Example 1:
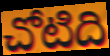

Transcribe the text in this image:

చోటిది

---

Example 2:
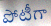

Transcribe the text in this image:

పోటీగా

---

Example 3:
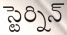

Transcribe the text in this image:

స్టెర్నిన్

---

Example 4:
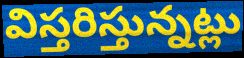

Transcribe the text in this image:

విస్తరిస్తున్నట్లు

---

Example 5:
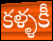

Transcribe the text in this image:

కళ్ళకీ